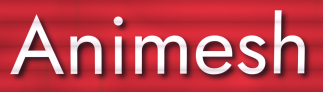
Animesh